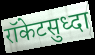
रॉकेटसुध्दा